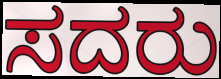
ಸದರು